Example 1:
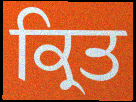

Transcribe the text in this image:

ਕ੍ਰਿਤ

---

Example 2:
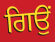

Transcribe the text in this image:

ਗਿਉਂ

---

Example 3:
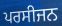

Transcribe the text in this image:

ਪਰਸੀਜਨ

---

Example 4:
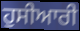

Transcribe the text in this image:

ਹੁਸੀਆਰੀ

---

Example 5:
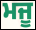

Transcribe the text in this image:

ਮਜੂ